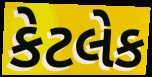
કેટલેક